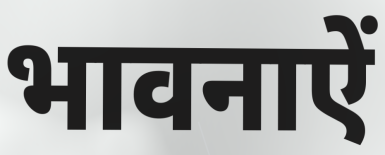
भावनाऐं